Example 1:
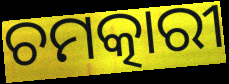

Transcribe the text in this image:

ଚମତ୍କାରୀ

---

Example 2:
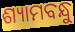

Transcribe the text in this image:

ଶ୍ୟାମବନ୍ଧୁ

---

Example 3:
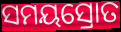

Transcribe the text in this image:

ସମୟସ୍ରୋତ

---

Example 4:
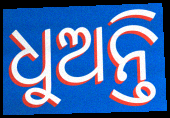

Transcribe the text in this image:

ଧୁଅନ୍ତି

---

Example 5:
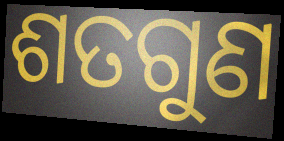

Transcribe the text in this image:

ଶତଗୁଣ